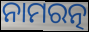
ନାମରତ୍ନ